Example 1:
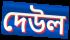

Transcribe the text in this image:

দেউল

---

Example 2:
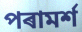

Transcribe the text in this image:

পৰামৰ্শ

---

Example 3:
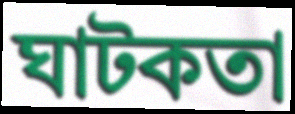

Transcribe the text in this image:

ঘাটকতা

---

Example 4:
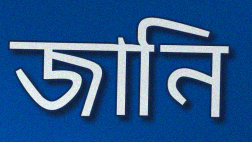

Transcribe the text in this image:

জানি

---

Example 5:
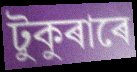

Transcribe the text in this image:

টুকুৰাৰে